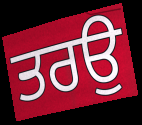
ਤਰਉ